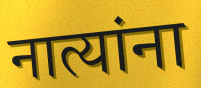
नात्यांना